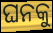
ଘନକୁ